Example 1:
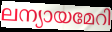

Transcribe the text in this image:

ലന്യായമേറി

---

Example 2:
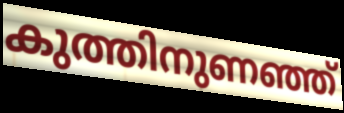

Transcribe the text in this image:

കുത്തിനുണഞ്ഞ്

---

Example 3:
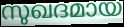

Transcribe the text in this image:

സുഖദമായ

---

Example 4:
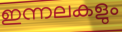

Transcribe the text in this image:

ഇന്നലകളും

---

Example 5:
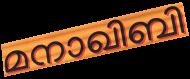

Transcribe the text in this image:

മനാഖിബി